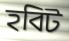
হবিট